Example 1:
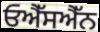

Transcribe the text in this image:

ਓਐੱਸਐੱਨ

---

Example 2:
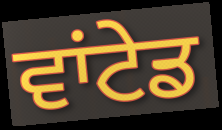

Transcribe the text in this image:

ਵਾਂਟੇਡ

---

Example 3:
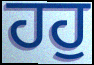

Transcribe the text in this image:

ਹਹੁ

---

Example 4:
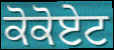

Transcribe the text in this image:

ਕੋਕੋਏਟ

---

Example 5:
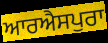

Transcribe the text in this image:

ਆਰਐਸਪੁਰਾ